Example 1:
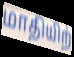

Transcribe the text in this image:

மாதியிற்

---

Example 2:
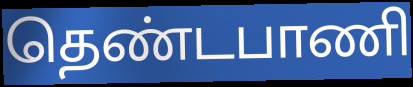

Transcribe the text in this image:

தெண்டபாணி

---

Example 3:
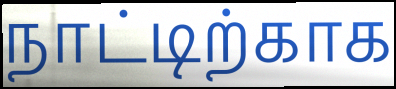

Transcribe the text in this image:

நாட்டிற்காக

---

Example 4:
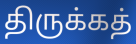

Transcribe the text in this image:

திருக்கத்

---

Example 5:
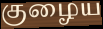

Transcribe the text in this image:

குழைய